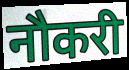
नौकरी